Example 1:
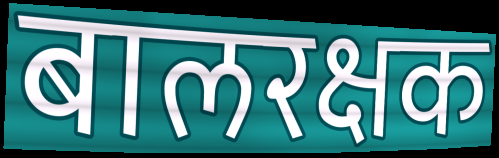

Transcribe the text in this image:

बालरक्षक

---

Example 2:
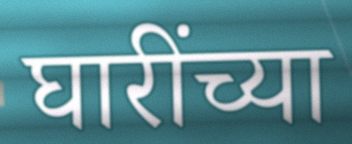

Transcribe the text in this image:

घारींच्या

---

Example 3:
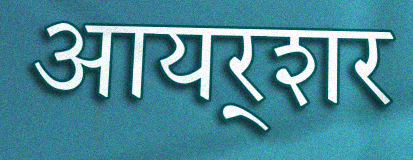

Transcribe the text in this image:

आयर्शर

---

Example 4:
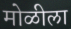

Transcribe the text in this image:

मोळीला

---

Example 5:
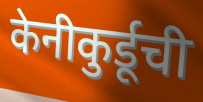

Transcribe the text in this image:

केनीकुर्डूची